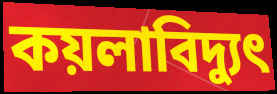
কয়লাবিদ্যুৎ